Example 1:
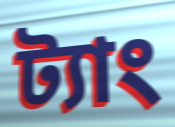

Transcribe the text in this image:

ট্যাং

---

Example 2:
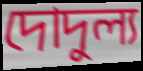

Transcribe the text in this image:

দোদুল্য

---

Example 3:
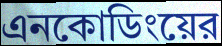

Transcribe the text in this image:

এনকোডিংয়ের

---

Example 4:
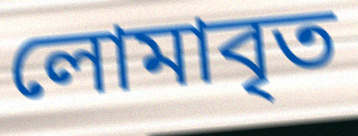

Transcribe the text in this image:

লোমাবৃত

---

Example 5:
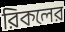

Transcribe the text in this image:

রিকলের